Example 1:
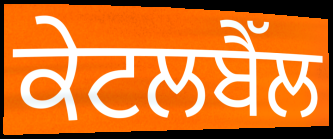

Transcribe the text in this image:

ਕੇਟਲਬੈੱਲ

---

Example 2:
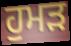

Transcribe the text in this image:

ਹੁਮੜ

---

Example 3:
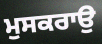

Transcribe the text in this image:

ਮੁਸਕਰਾਉ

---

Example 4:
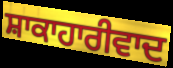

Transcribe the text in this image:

ਸ਼ਾਕਾਹਾਰੀਵਾਦ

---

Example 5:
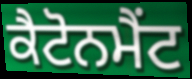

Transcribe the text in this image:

ਕੈਟੋਨਮੈਂਟ